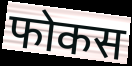
फोकस